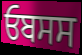
ਓਬਸਸ